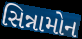
સિન્નામોન